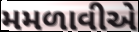
મમળાવીએ